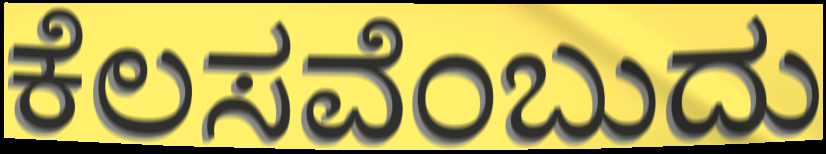
ಕೆಲಸವೆಂಬುದು